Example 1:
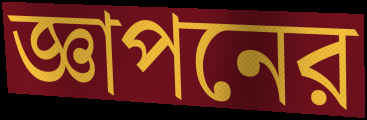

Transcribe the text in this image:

জ্ঞাপনের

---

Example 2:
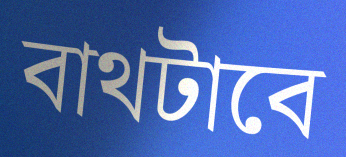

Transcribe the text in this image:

বাথটাবে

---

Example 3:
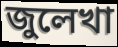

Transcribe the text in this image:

জুলেখা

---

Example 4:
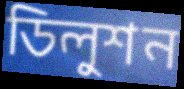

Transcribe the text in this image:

ডিলুশন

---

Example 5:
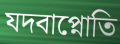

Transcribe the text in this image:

যদবাপ্নোতি